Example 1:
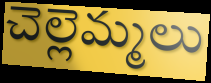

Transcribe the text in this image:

చెల్లెమ్మలు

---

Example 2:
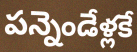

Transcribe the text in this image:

పన్నెండేళ్లకే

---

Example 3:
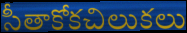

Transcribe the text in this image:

సీతాకోకచిలుకలు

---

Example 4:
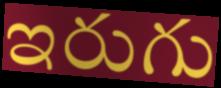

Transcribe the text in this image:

ఇరుగు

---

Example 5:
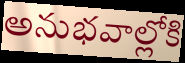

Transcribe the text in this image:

అనుభవాల్లోకి